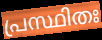
പ്രസ്ഥിതഃ